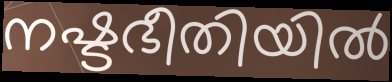
നഷ്ടഭീതിയിൽ